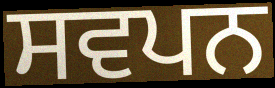
ਸਵਪਨ